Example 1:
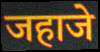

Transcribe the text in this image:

जहाजे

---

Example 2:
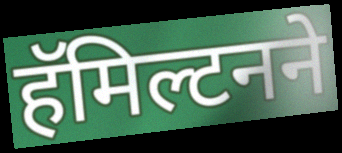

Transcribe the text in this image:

हॅमिल्टनने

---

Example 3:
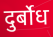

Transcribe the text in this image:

दुर्बोध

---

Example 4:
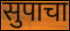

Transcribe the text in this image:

सुपाचा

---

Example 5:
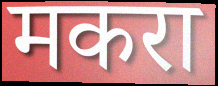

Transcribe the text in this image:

मकरा